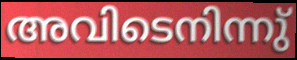
അവിടെനിന്നു്